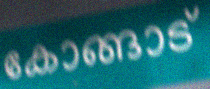
കോങ്ങാട്